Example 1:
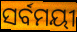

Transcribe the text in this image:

ସର୍ବମୟୀ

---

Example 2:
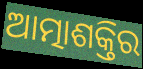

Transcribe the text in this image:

ଆତ୍ମାଶକ୍ତିର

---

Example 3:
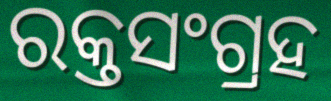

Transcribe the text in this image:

ରକ୍ତସଂଗ୍ରହ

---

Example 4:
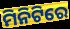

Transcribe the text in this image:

ମିନିଟିରେ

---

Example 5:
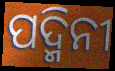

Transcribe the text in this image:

ପଦ୍ମିନୀ